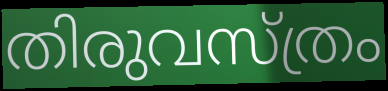
തിരുവസ്ത്രം